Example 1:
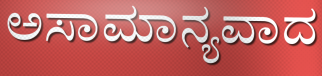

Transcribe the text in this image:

ಅಸಾಮಾನ್ಯವಾದ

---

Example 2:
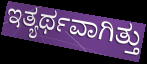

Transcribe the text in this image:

ಇತ್ಯರ್ಥವಾಗಿತ್ತು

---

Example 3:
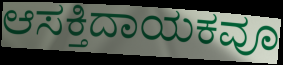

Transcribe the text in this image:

ಆಸಕ್ತಿದಾಯಕವೂ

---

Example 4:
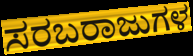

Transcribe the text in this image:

ಸರಬರಾಜುಗಳ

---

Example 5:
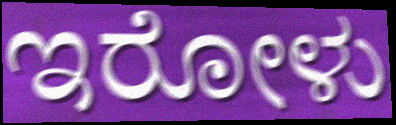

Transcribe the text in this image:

ಇರೋಳು